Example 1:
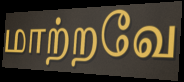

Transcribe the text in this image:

மாற்றவே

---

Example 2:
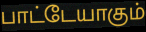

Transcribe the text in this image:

பாட்டேயாகும்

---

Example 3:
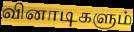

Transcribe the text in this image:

வினாடிகளும்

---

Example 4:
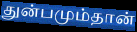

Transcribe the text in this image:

துன்பமும்தான்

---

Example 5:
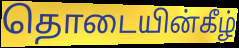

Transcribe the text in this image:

தொடையின்கீழ்